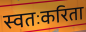
स्वतःकरिता